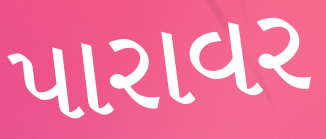
પારાવર